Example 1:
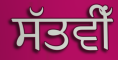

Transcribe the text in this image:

ਸੱਤਵੀਁ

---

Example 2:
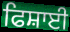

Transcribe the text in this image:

ਫਿਸ਼ਾਈ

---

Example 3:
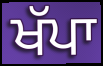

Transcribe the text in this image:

ਖੱਪਾ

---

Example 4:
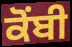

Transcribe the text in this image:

ਕੋਂਬੀ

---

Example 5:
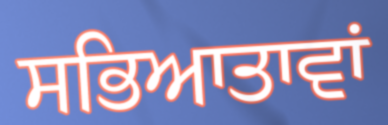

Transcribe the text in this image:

ਸਭਿਆਤਾਵਾਂ